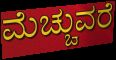
ಮೆಚ್ಚುವರೆ